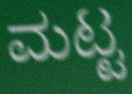
ಮಟ್ಟ